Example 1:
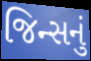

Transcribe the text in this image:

જિન્સનું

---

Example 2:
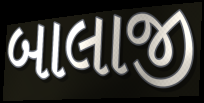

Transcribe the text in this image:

બાલાજી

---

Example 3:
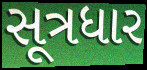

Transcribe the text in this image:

સૂત્રધાર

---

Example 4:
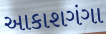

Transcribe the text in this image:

આકાશગંગા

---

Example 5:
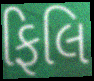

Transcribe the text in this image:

ફિલિ